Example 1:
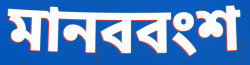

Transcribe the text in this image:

মানববংশ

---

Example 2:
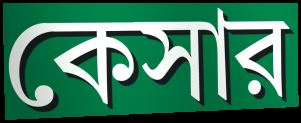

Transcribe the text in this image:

কেসার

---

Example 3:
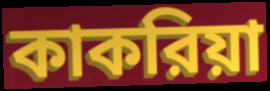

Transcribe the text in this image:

কাকরিয়া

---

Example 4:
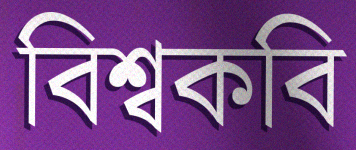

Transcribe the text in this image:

বিশ্বকবি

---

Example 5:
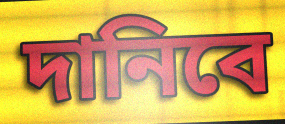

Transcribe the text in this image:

দানিবে